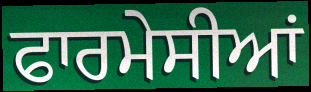
ਫਾਰਮੇਸੀਆਂ